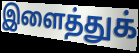
இளைத்துக்